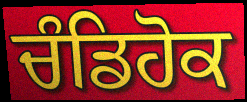
ਚੰਡਿਹੋਕ